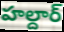
హల్దార్